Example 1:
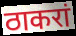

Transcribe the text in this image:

ठाकरां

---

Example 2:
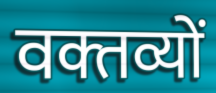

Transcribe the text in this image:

वक्‍तव्‍यों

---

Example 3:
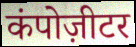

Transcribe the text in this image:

कंपोज़ीटर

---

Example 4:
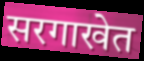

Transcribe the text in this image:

सरगाखेत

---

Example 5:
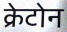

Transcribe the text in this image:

क्रेटोन